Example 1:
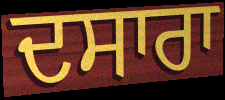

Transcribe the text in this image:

ਦਸਾਰਾ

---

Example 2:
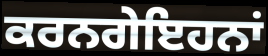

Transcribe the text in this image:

ਕਰਨਗੇਇਹਨਾਂ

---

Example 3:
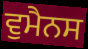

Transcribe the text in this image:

ਵੁਮੈਨਸ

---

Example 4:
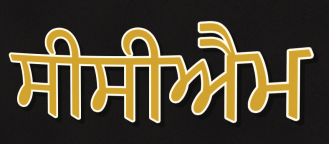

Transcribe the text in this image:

ਸੀਸੀਐਮ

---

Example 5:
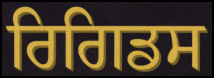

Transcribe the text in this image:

ਰਿਗਿਡਸ